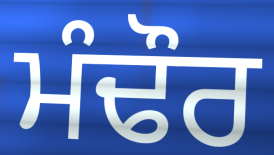
ਮੰਢੌਰ